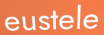
eustele